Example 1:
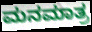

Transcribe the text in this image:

ಮನಮಾತ್ರ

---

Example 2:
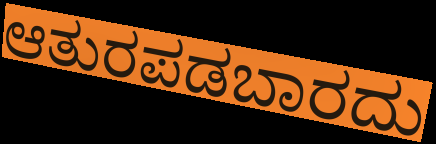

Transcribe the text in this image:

ಆತುರಪಡಬಾರದು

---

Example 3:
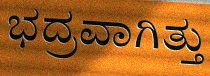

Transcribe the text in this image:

ಭದ್ರವಾಗಿತ್ತು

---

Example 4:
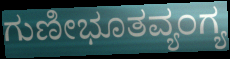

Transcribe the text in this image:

ಗುಣೀಭೂತವ್ಯಂಗ್ಯ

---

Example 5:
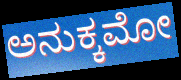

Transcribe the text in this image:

ಅನುಕ್ಕಮೋ